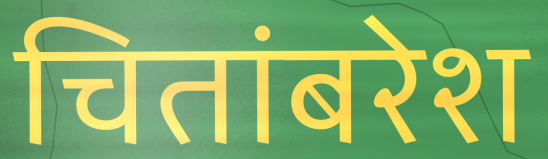
चितांबरेश